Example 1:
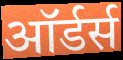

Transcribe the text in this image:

ऑर्डर्स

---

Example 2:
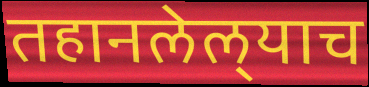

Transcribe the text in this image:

तहानलेल्याच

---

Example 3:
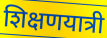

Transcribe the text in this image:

शिक्षणयात्री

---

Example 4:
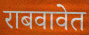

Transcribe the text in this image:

राबवावेत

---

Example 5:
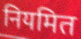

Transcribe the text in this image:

नियमित